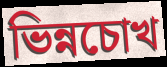
ভিন্নচোখ